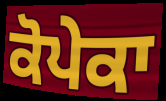
ਕੋਪੇਕਾ